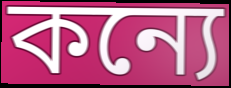
কন্যে